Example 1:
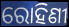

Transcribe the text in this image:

ରୋହିଣୀ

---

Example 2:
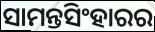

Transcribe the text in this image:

ସାମନ୍ତସିଂହାରର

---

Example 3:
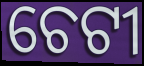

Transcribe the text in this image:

ଚେଟୀ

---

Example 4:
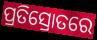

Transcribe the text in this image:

ପ୍ରତିସ୍ରୋତରେ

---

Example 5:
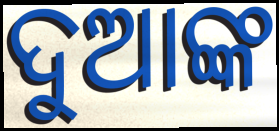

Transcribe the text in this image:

ଦୁଆଙ୍କ